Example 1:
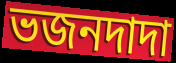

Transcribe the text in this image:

ভজনদাদা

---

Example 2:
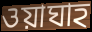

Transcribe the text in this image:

ওয়াঘাহ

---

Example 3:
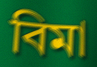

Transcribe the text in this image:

বিমা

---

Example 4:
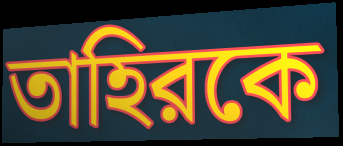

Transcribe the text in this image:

তাহিরকে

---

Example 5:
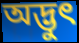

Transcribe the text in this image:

অদ্ভুৎ